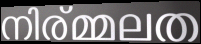
നിര്മ്മലത